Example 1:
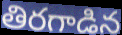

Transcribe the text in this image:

తిరగాడిన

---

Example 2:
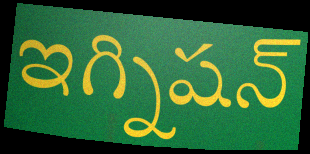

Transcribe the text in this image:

ఇగ్నిషన్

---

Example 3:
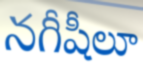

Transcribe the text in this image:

నగీషీలూ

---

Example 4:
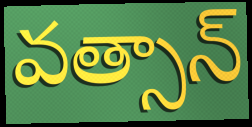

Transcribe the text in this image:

వత్సాన్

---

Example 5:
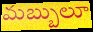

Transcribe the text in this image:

మబ్బులూ